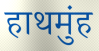
हाथमुंह